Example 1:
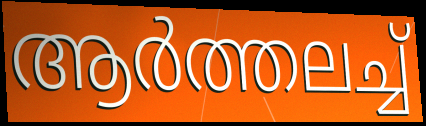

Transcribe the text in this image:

ആർത്തലച്ച്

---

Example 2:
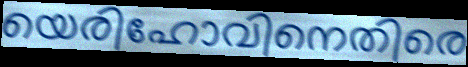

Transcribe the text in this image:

യെരിഹോവിനെതിരെ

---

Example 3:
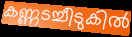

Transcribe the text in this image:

കണ്ണടച്ചീടുകിൽ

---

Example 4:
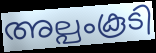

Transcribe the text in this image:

അല്പംകൂടി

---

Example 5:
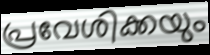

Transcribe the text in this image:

പ്രവേശിക്കയും